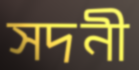
সদনী